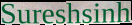
Sureshsinh